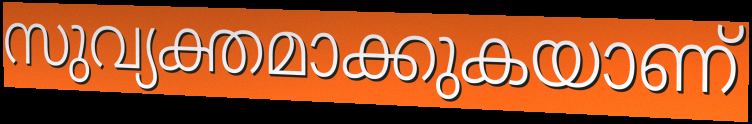
സുവ്യക്തമാക്കുകയാണ്